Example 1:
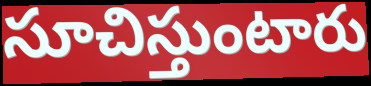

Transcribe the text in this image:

సూచిస్తుంటారు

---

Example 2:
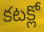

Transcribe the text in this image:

కటక్లో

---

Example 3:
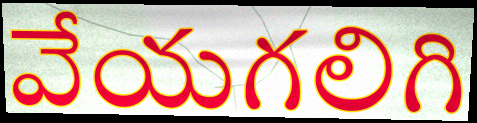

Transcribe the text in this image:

వేయగలిగి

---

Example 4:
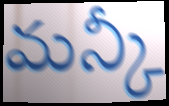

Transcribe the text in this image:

మన్కీ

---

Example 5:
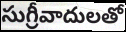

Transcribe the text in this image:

సుగ్రీవాదులతో